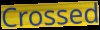
Crossed